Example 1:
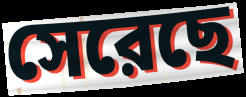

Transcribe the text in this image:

সেরেছে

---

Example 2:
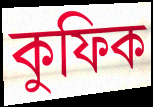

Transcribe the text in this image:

কুফিক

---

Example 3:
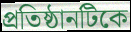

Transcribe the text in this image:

প্রতিষ্ঠানটিকে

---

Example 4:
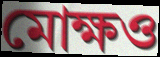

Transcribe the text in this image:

মোক্ষও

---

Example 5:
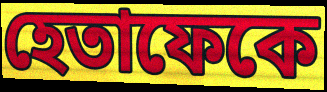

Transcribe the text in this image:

হেতাফেকে